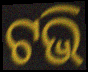
ଟଭି